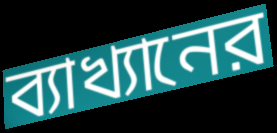
ব্যাখ্যানের